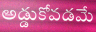
అడ్డుకోవడమే